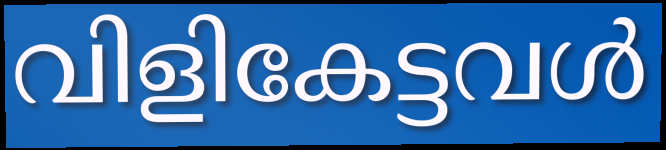
വിളികേട്ടവൾ